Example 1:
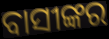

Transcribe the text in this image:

ବାସୀଙ୍କର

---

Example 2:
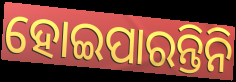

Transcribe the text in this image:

ହୋଇପାରନ୍ତିନି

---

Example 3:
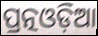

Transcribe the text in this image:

ପ୍ରତ୍ନଓଡ଼ିଆ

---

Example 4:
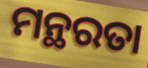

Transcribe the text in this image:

ମନ୍ଥରତା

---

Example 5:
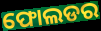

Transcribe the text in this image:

ଫୋଲଡର